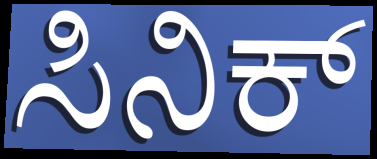
ಸಿನಿಕ್